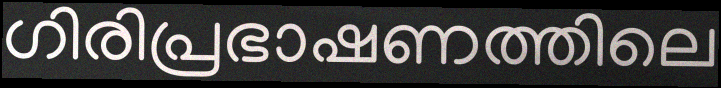
ഗിരിപ്രഭാഷണത്തിലെ